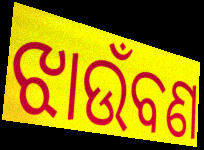
ଝାଉଁବଣ